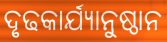
ଦୃଢକାର୍ଯ୍ୟାନୁଷ୍ଠାନ